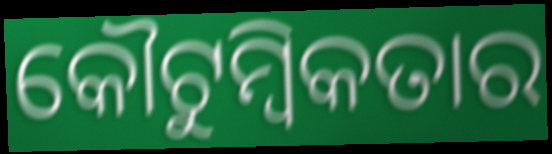
କୌଟୁମ୍ବିକତାର